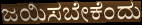
ಜಯಿಸಬೇಕೆಂದು